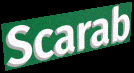
Scarab